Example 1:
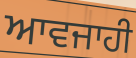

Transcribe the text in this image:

ਆਵਜਾਹੀ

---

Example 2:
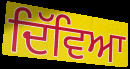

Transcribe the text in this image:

ਦਿੱਵਿਆ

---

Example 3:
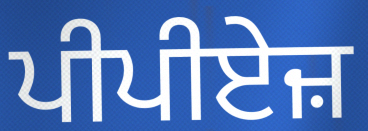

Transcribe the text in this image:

ਪੀਪੀਏਜ਼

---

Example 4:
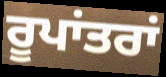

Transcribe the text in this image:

ਰੂਪਾਂਤਰਾਂ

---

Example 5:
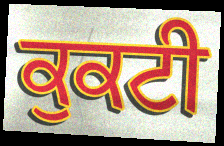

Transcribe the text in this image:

ਕੁਕਟੀ